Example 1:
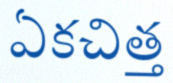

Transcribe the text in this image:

ఏకచిత్త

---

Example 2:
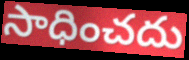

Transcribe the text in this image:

సాధించదు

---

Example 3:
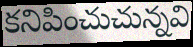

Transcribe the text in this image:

కనిపించుచున్నవి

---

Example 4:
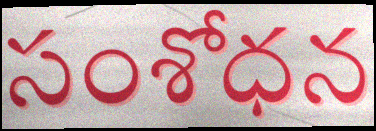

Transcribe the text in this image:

సంశోధన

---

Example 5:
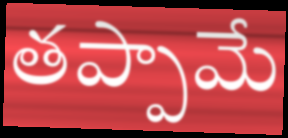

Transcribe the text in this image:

తప్పామే